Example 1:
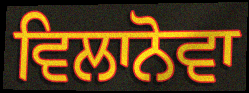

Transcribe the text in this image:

ਵਿਲਾਨੋਵਾ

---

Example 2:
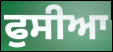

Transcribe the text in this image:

ਫੁਸੀਆ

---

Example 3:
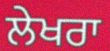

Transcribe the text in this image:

ਲੇਖਰਾ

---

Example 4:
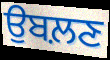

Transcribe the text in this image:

ਉਬਲ਼ਣ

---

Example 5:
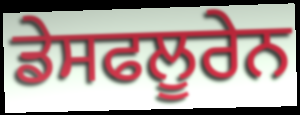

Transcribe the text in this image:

ਡੇਸਫਲੂਰੇਨ